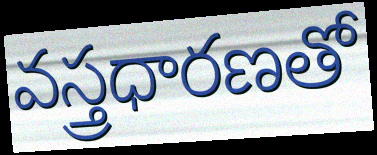
వస్త్రధారణతో